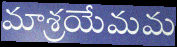
మాశ్రయేమమ